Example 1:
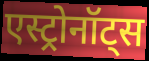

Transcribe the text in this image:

एस्ट्रोनॉट्स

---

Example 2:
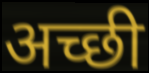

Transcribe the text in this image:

अच्छी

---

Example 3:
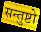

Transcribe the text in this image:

सन्तुष्टो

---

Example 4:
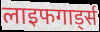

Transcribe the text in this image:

लाइफगार्ड्स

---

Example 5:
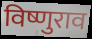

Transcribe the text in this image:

विष्णुराव